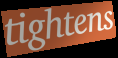
tightens